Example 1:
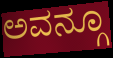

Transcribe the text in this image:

ಅವನ್ಗೂ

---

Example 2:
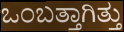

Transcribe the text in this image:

ಒಂಬತ್ತಾಗಿತ್ತು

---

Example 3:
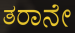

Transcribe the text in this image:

ತರಾನೇ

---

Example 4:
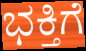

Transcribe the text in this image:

ಭಕ್ತಿಗೆ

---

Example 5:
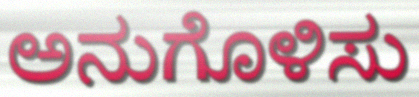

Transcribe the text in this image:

ಅನುಗೊಳಿಸು